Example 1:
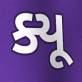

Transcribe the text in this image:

ક્યૂ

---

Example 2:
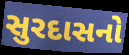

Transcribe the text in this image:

સુરદાસનો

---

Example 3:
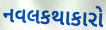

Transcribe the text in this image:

નવલકથાકારો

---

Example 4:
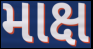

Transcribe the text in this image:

માક્ષ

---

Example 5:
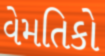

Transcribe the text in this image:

વેમતિકો